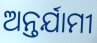
ଅନ୍ତର୍ଯାମୀ